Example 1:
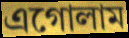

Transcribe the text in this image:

এগোলাম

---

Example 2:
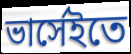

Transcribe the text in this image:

ভার্সেইতে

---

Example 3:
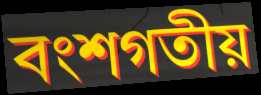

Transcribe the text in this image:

বংশগতীয়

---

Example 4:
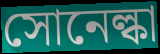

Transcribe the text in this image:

সোনেল্কা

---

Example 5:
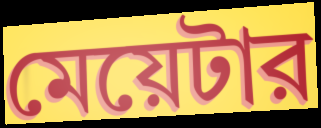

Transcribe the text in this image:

মেয়েটার